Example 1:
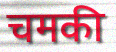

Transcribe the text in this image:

चमकी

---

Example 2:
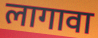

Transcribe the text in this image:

लागावा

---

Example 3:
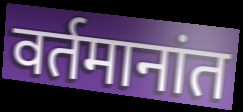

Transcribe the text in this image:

वर्तमानांत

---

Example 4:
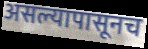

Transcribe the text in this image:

असल्यापासूनच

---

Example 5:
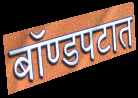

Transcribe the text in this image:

बॉण्डपटात